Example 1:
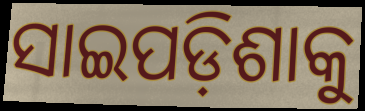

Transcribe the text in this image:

ସାଇପଡ଼ିଶାକୁ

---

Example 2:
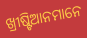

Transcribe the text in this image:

ଖ୍ରୀଷ୍ଟିଆନମାନେ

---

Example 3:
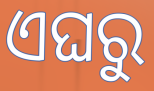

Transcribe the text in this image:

ଏଘରୁ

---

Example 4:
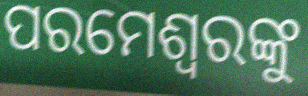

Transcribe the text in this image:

ପରମେଶ୍ୱରଙ୍କୁ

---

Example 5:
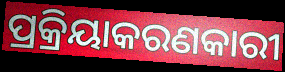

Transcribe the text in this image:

ପ୍ରକ୍ରିୟାକରଣକାରୀ